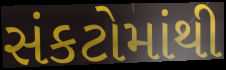
સંકટોમાંથી